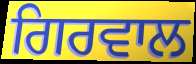
ਗਿਰਵਾਲ